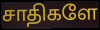
சாதிகளே